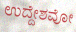
ಉದ್ದೇಶವೋ